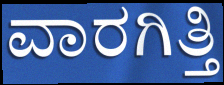
ವಾರಗಿತ್ತಿ